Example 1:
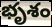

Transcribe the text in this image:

భృశం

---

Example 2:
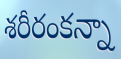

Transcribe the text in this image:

శరీరంకన్నా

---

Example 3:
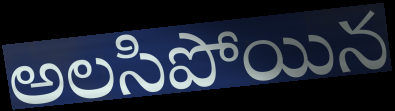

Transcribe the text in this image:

అలసిపోయిన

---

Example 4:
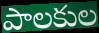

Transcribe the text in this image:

పాలకుల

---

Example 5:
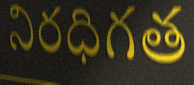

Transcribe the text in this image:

నిరధిగత